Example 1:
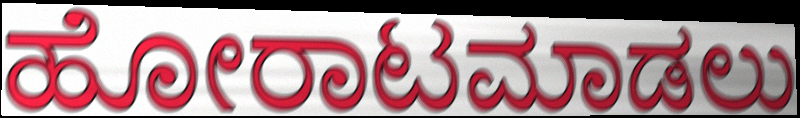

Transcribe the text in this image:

ಹೋರಾಟಮಾಡಲು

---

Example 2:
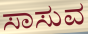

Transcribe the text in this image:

ಸಾಸುವ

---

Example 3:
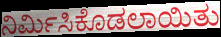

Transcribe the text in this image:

ನಿರ್ಮಿಸಿಕೊಡಲಾಯಿತು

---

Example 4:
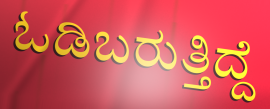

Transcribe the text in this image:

ಓಡಿಬರುತ್ತಿದ್ದೆ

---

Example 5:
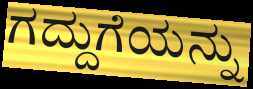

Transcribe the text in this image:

ಗದ್ದುಗೆಯನ್ನು